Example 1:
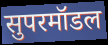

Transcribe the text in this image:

सुपरमॉडल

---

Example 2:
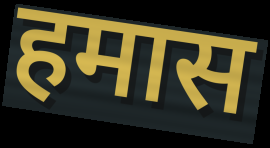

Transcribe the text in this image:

हमास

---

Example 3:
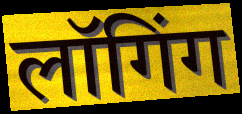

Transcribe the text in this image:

लॉगिंग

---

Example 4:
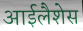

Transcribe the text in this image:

आईलैशेस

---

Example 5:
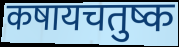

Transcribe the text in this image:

कषायचतुष्क